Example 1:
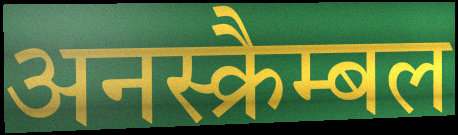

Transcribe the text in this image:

अनस्क्रैम्बल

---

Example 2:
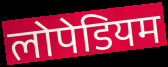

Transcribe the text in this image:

लोपेडियम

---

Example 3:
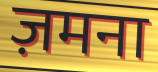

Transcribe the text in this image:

ज़मना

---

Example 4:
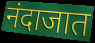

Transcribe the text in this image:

नंदाजात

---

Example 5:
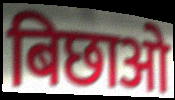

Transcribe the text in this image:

बिछाओ